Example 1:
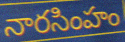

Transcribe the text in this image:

నారసింహం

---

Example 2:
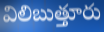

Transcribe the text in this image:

విలిబుత్తూరు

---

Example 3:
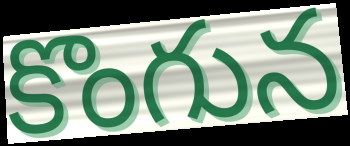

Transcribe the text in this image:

కొంగున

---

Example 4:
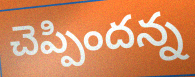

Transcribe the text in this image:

చెప్పిందన్న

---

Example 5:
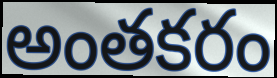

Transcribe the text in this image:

అంతకరం